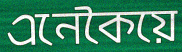
এনেকৈয়ে